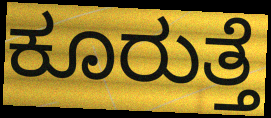
ಕೂರುತ್ತೆ